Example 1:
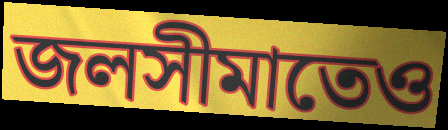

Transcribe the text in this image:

জলসীমাতেও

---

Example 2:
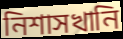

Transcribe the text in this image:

নিশাসখানি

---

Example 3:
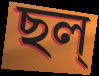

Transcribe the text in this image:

ছল্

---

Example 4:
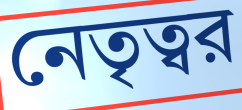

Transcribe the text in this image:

নেতৃত্বর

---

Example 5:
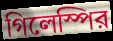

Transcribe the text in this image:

গিলেস্পির